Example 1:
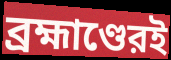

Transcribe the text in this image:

ব্রহ্মাণ্ডেরই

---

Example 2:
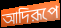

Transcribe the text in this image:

আদিরূপে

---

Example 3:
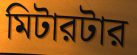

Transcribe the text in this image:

মিটারটার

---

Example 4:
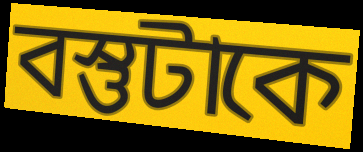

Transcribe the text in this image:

বস্তুটাকে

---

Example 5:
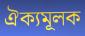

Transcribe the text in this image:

ঐক্যমূলক